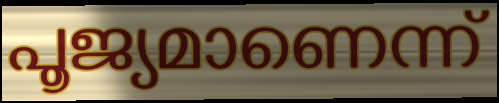
പൂജ്യമാണെന്ന്